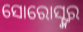
ସୋରୋସ୍ଙ୍କର